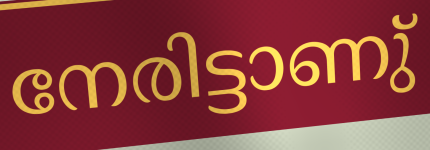
നേരിട്ടാണു്